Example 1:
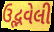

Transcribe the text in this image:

ઉદ્ભવેલી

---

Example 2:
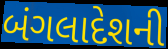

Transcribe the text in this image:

બંગલાદેશની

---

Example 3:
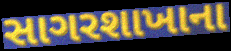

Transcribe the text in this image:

સાગરશાખાના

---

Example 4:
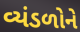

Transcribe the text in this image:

વ્યંડળોને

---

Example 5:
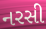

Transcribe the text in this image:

નરસી